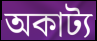
অকাট্য